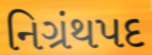
નિગ્રંથપદ